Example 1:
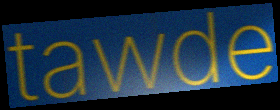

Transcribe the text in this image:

tawde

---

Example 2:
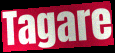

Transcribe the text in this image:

Tagare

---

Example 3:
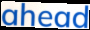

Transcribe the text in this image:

ahead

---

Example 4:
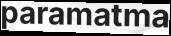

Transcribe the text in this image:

paramatma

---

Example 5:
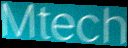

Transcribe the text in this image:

Mtech